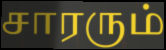
சாரரும்